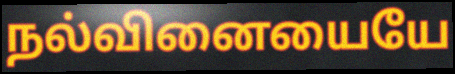
நல்வினையையே